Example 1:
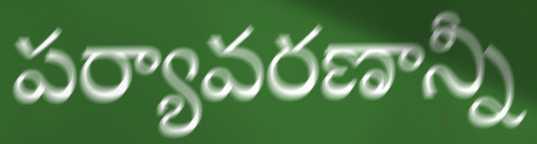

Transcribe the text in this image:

పర్యావరణాన్నీ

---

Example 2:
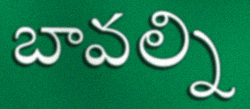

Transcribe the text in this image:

బావల్ని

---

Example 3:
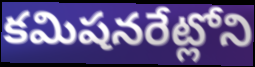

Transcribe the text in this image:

కమిషనరేట్లోని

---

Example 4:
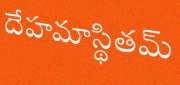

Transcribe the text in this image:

దేహమాస్థితమ్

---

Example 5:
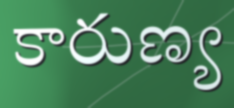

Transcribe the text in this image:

కారుణ్య